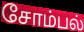
சோம்பல்